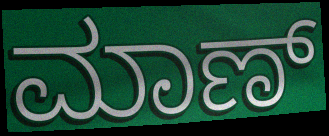
ಮಾಣ್